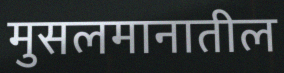
मुसलमानातील